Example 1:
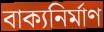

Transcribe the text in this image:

বাক্যনির্মাণ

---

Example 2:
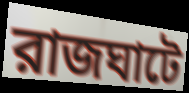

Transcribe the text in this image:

রাজঘাটে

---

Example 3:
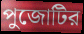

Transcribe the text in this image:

পুজোটির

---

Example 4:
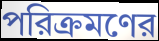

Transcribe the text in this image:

পরিক্রমণের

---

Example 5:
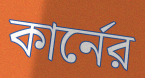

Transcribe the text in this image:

কার্নের